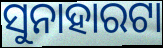
ସୁନାହାରଟା